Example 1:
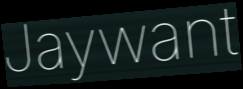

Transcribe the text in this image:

Jaywant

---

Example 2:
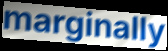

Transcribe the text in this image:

marginally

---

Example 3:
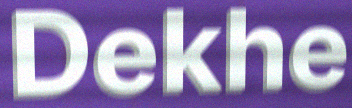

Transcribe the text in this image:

Dekhe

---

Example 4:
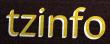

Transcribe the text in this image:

tzinfo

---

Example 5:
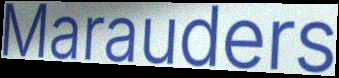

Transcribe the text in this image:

Marauders